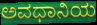
ಅವಧಾನಿಯ